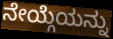
ನೇಯ್ಗೆಯನ್ನು